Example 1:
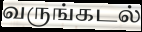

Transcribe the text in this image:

வருங்கடல்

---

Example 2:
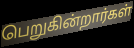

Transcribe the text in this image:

பெறுகின்றார்கள்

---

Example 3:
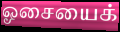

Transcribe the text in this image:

ஓசையைக்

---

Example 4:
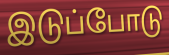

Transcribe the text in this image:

இடுப்போடு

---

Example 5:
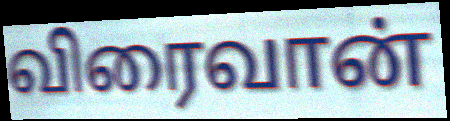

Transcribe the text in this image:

விரைவான்